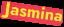
Jasmina